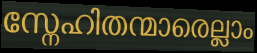
സ്നേഹിതന്മാരെല്ലാം